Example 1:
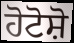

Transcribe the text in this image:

ਹੋਟੋਸ਼ੋ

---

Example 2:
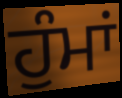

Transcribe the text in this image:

ਹੁੰਮਾਂ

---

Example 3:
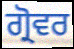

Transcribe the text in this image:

ਗ੍ਰੋਵਰ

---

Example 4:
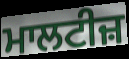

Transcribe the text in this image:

ਮਾਲਟੀਜ਼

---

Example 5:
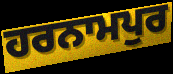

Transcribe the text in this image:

ਹਰਨਾਮਪੁਰ